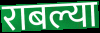
राबल्या